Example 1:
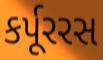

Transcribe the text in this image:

કર્પૂરરસ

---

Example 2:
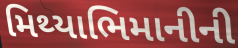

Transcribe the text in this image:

મિથ્યાભિમાનીની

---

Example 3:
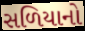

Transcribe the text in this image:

સળિયાનો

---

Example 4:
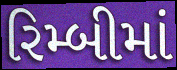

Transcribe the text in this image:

રિમ્બીમાં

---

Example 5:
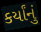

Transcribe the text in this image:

કર્યાંનું